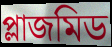
প্লাজমিড